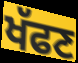
ਖੱਫਣ